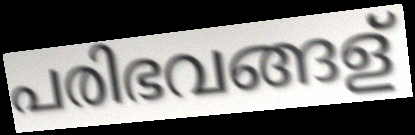
പരിഭവങ്ങള്